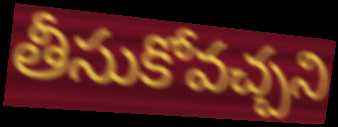
తీసుకోవచ్చని